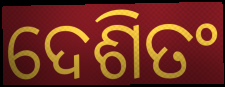
ଦେଶିତଂ